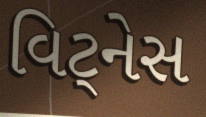
વિટ્નેસ